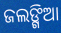
ଜଲଙ୍ଗିଆ